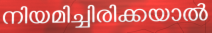
നിയമിച്ചിരിക്കയാൽ